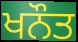
ਖਨੌਤ